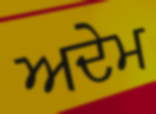
ਅਦੇਮ